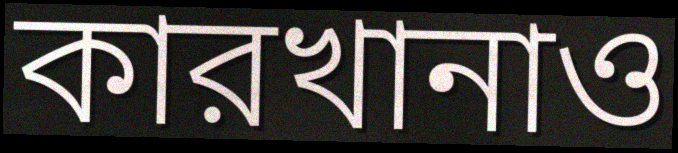
কারখানাও